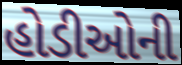
હોડીઓની